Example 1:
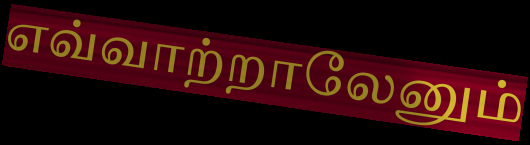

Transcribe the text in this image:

எவ்வாற்றாலேனும்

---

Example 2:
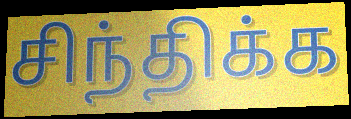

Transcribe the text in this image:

சிந்திக்க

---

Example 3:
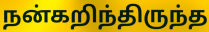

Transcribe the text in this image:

நன்கறிந்திருந்த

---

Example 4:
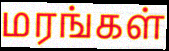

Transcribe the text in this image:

மரங்கள்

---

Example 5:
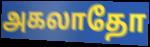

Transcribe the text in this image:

அகலாதோ